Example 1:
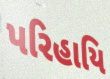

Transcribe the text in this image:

પરિહાયિ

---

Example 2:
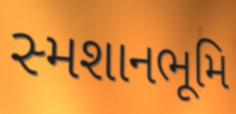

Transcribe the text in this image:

સ્મશાનભૂમિ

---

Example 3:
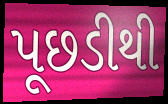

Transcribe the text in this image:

પૂછડીથી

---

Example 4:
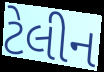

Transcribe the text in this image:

ટેલીન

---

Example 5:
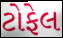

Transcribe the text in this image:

ટોફેલ